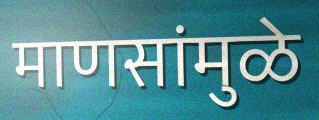
माणसांमुळे